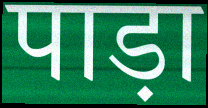
पाड़ा